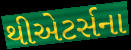
થીએટર્સના